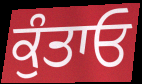
ਕੁੰਤਾਓ